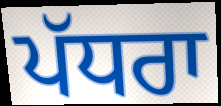
ਪੱਧਰਾ